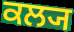
ਕਲ੍ਯ